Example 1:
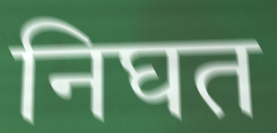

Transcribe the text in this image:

निघत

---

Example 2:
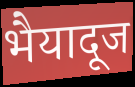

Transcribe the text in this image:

भैयादूज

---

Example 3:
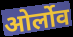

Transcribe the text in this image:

ओर्लोव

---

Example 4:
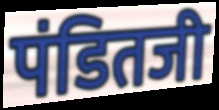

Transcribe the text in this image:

पंडितजी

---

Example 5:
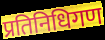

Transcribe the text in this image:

प्रतिनिधिगण